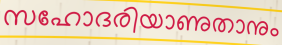
സഹോദരിയാണുതാനും